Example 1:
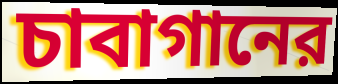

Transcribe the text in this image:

চাবাগানের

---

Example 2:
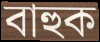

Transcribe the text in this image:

বাহুক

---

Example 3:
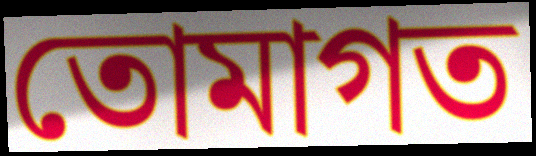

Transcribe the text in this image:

তোমাগত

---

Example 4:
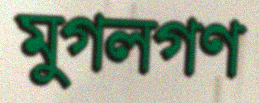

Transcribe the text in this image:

মুগলগণ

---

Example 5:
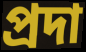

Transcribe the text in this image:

প্রদা